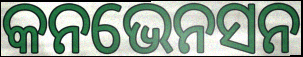
କନଭେନସନ